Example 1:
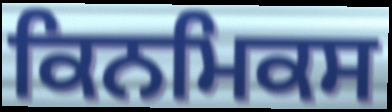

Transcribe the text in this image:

ਕਿਨਮਿਕਸ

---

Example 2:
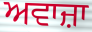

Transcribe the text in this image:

ਅਵਾਜ਼ਾ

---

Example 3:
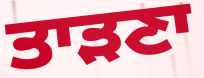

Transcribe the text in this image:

ਤਾੜਣਾ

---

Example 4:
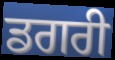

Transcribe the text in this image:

ਡਗਰੀ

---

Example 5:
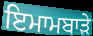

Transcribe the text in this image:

ਇਮਾਮਬਾੜੇ